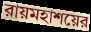
রায়মহাশয়ের